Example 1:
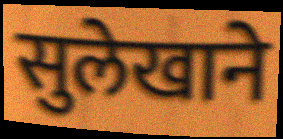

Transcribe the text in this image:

सुलेखाने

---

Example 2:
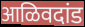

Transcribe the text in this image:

आळिवदांड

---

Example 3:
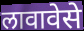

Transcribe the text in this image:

लावावेसे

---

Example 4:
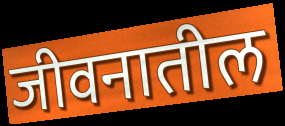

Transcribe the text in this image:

जीवनातील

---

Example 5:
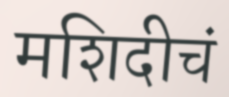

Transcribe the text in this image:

मशिदीचं